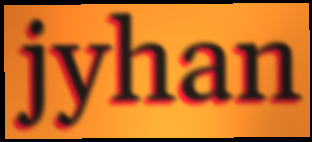
jyhan